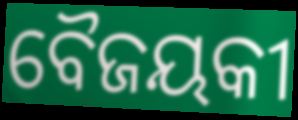
ବୈଜୟକୀ